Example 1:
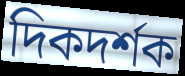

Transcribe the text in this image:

দিকদর্শক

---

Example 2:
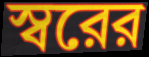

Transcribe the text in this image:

স্বরের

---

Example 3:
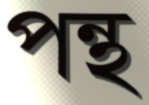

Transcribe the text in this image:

পন্থ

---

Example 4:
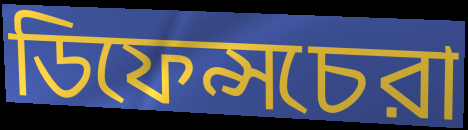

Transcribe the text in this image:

ডিফেন্সচেরা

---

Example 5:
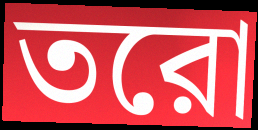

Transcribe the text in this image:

তরো